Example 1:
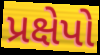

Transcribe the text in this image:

પ્રક્ષેપો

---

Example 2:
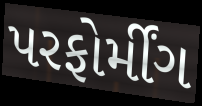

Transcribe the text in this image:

પરફોર્મીંગ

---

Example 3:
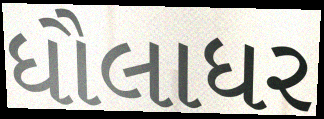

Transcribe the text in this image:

ધૌલાધર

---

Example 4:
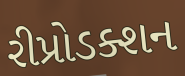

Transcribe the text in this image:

રીપ્રોડક્શન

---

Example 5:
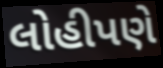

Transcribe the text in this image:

લોહીપણે